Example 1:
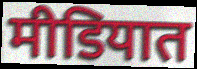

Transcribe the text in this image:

मीडियात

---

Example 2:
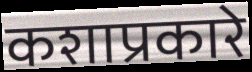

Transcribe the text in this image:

कशाप्रकारे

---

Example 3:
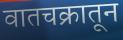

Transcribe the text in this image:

वातचक्रातून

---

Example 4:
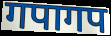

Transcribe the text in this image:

गपागप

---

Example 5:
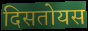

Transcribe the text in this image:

दिसतोयस